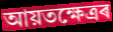
আয়তক্ষেত্ৰৰ